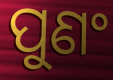
ପୁଣଂ